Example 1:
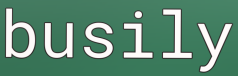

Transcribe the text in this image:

busily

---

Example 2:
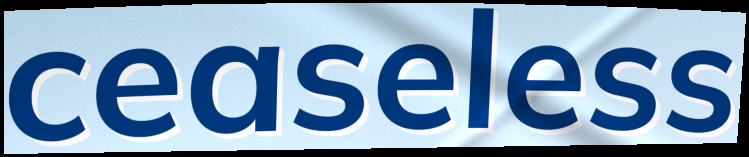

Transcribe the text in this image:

ceaseless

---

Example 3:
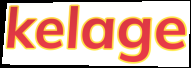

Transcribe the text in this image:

kelage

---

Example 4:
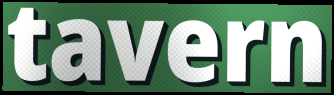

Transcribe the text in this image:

tavern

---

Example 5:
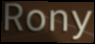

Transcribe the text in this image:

Rony